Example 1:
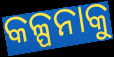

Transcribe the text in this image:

କଳ୍ପନାକୁ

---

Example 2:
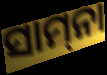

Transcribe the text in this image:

ସାମ୍‍ନା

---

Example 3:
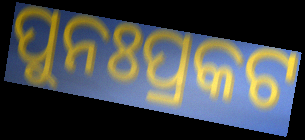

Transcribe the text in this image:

ପୁନଃପ୍ରକଟ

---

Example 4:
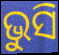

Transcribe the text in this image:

ଭୁସି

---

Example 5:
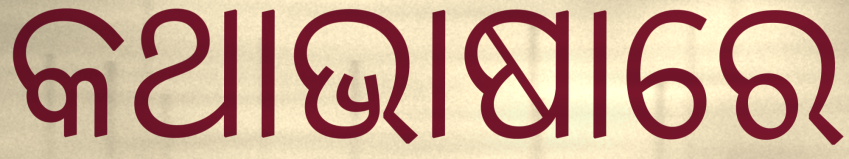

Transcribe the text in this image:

କଥାଭାଷାରେ